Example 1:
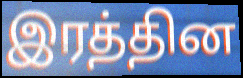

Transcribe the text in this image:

இரத்தின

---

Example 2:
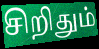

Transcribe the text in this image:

சிறிதும்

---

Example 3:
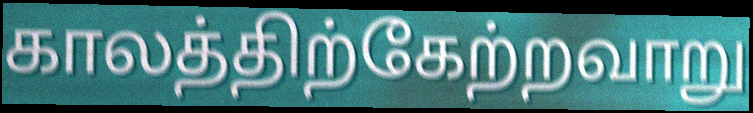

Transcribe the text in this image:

காலத்திற்கேற்றவாறு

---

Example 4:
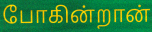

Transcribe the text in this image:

போகின்றான்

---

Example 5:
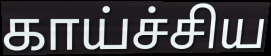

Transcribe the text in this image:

காய்ச்சிய